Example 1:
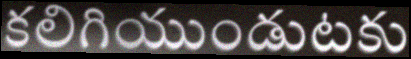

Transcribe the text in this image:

కలిగియుండుటకు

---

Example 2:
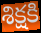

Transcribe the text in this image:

శిక్షకి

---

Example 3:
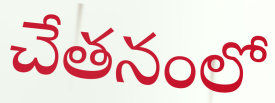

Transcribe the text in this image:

చేతనంలో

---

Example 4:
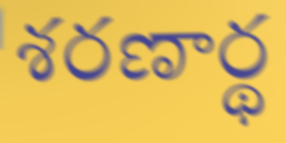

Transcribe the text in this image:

శరణార్థ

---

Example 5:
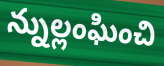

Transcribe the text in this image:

న్నుల్లంఘించి